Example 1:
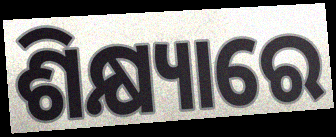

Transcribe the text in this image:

ଶିକ୍ଷ୍ୟାରେ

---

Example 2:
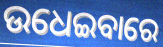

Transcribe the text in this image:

ଉଧେଇବାରେ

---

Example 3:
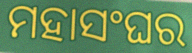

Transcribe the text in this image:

ମହାସଂଘର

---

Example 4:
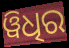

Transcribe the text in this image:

ୱିଧିର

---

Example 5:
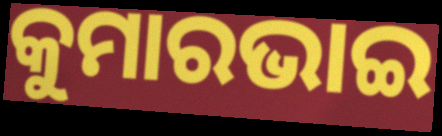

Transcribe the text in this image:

କୁମାରଭାଇ